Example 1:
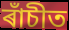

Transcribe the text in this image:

ৰাঁচীত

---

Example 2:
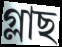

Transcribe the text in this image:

গ্লাছ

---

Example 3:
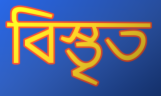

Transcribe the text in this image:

বিস্তৃত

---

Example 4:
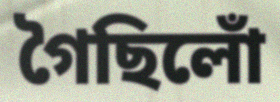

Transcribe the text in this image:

গৈছিলোঁ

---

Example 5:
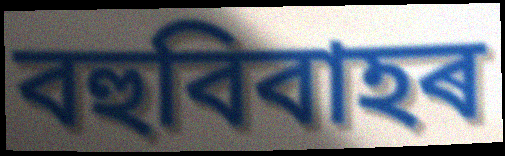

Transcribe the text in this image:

বহুবিবাহৰ